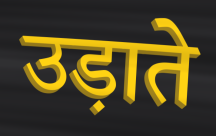
उड़ाते